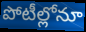
పోటీల్లోనూ